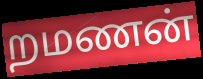
றமணன்